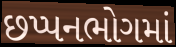
છપ્પનભોગમાં